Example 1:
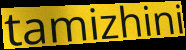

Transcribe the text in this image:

tamizhini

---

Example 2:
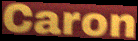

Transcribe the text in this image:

Caron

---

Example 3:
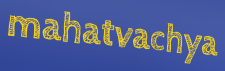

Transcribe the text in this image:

mahatvachya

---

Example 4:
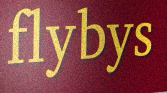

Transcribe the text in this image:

flybys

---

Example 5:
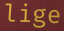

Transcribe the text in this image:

lige